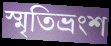
স্মৃতিভ্রংশ